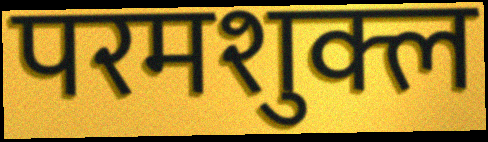
परमशुक्ल